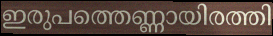
ഇരുപത്തെണ്ണായിരത്തി